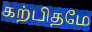
கற்பிதமே